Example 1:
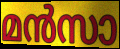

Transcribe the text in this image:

മൻസാ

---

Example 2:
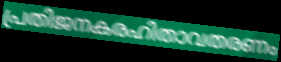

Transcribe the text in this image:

പ്രതിജനകരഹിതാവതരണം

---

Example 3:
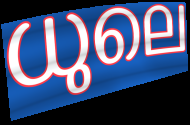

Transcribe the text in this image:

ധുലെ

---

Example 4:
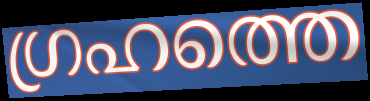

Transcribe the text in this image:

ഗ്രഹത്തെ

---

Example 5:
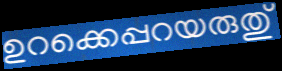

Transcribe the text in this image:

ഉറക്കെപ്പറയരുതു്